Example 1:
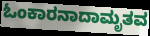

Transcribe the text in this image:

ಓಂಕಾರನಾದಾಮೃತವ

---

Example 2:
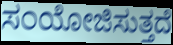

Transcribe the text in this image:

ಸಂಯೋಜಿಸುತ್ತದೆ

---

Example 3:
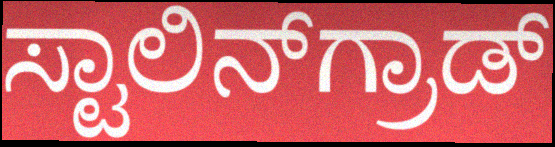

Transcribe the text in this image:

ಸ್ಟಾಲಿನ್‌ಗ್ರಾಡ್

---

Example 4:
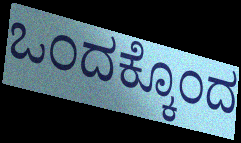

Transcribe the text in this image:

ಒಂದಕ್ಕೊಂದ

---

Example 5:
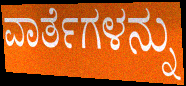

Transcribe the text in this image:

ವಾರ್ತೆಗಳನ್ನು